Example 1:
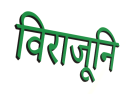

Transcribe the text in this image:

विराजूनि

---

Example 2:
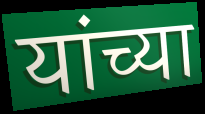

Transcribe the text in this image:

यांच्या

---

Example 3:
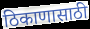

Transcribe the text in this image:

ठिकाणासाठी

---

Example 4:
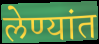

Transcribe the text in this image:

लेण्यांत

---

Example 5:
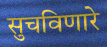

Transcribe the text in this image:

सुचविणारे